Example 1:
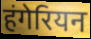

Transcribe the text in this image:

हंगेरियन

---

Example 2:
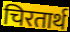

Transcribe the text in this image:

चिरतार्थ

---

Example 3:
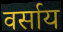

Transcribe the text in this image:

वर्साय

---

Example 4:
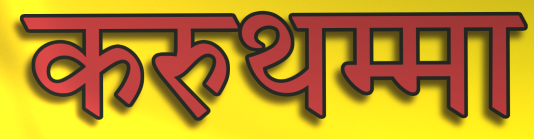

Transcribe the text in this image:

करुथम्मा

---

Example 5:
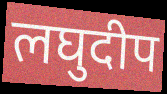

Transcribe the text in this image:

लघुदीप